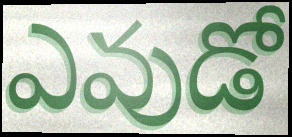
ఎవుడో